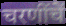
चरणींचें